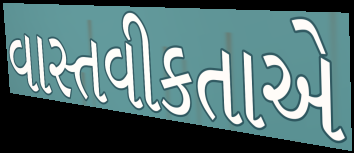
વાસ્તવીકતાએ